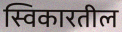
स्विकारतील